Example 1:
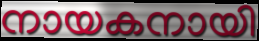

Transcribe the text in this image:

നായകനായി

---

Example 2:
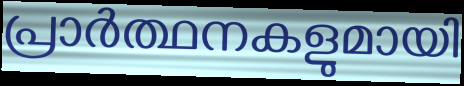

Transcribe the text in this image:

പ്രാർത്ഥനകളുമായി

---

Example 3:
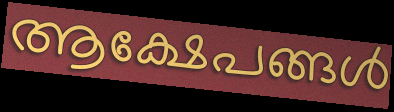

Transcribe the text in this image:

ആക്ഷേപങ്ങൾ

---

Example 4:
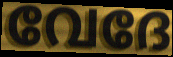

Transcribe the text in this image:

വേദേ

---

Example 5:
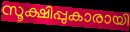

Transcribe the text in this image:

സൂക്ഷിപ്പുകാരായി